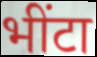
भींटा